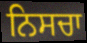
ਨਿਸਚਾ